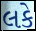
લકે